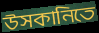
উসকানিতে